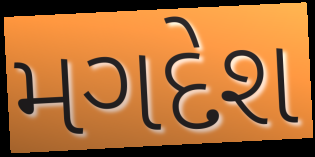
મગદેશ